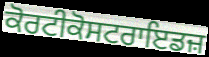
ਕੋਰਟੀਕੋਸਟਰਾਇਡਜ਼